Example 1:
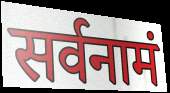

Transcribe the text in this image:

सर्वनामं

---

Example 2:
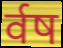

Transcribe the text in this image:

र्वष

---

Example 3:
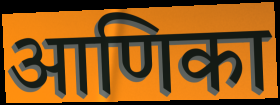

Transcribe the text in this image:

आणिका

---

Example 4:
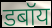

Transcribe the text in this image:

डबॉय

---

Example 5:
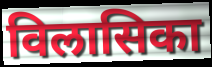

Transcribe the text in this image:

विलासिका